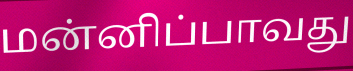
மன்னிப்பாவது